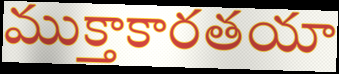
ముక్తాకారతయా